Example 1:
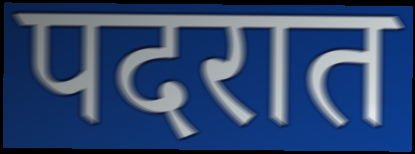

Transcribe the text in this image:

पदरात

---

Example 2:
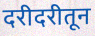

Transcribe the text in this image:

दरीदरीतून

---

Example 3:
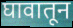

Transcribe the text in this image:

घावातून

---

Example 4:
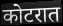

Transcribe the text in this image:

कोटरात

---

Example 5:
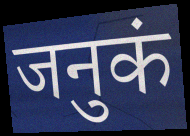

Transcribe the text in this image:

जनुकं